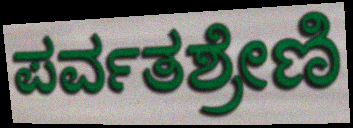
ಪರ್ವತಶ್ರೇಣಿ